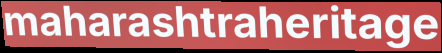
maharashtraheritage